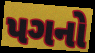
પગનો